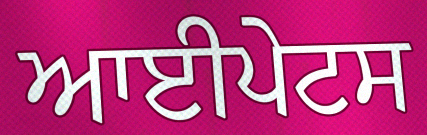
ਆਈਪੇਟਸ